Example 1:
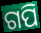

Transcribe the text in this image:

ଗପି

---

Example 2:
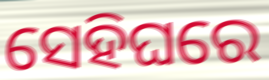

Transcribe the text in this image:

ସେହିଘରେ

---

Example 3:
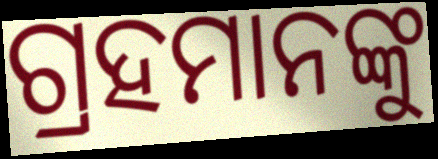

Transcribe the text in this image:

ଗ୍ରହମାନଙ୍କୁ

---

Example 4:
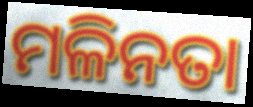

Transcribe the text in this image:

ମଳିନତା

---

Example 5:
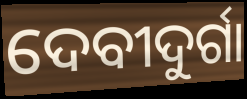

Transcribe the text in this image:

ଦେବୀଦୁର୍ଗା